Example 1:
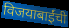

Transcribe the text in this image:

विजयाबाईंची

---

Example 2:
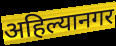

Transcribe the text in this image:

अहिल्यानगर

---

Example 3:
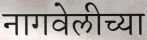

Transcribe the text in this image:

नागवेलीच्या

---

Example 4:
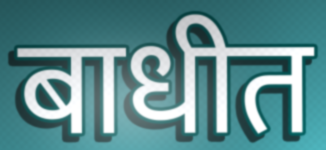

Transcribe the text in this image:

बाधीत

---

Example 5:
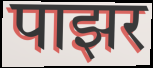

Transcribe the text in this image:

पाझर